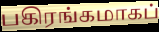
பகிரங்கமாகப்